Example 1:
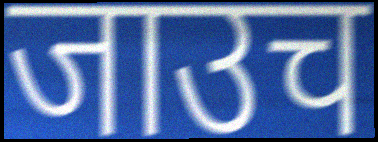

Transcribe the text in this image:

जाउच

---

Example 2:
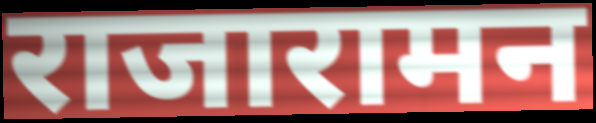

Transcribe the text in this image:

राजारामन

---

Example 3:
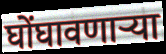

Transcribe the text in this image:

घोंघावणाऱ्या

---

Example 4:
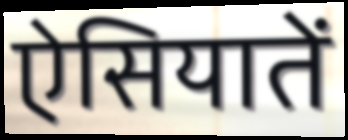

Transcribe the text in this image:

ऐसियातें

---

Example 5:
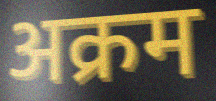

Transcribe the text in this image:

अक्रम